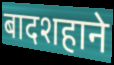
बादशहाने